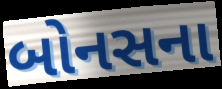
બોનસના